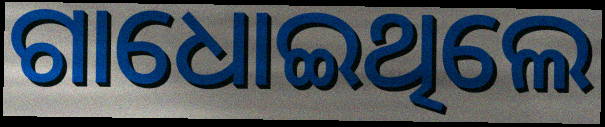
ଗାଧୋଇଥିଲେ